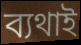
ব্যথাই